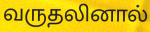
வருதலினால்